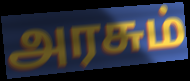
அரசும்